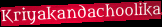
Kriyakandachoolika